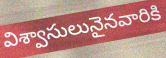
విశ్వాసులునైనవారికి